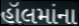
હૉલમાંના